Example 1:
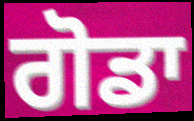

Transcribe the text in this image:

ਗੋਡਾ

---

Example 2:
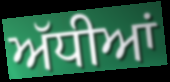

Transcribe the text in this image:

ਅੱਧੀਆਂ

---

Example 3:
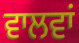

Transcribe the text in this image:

ਵਾਲਵਾਂ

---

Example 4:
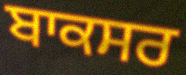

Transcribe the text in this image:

ਬਾਕਸਰ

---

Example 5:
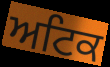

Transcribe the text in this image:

ਅਟਿਕ